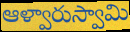
ఆళ్వారుస్వామి